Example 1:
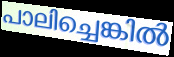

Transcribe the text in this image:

പാലിച്ചെങ്കിൽ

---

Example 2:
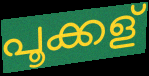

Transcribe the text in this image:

പൂക്കള്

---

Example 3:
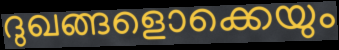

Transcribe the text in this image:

ദുഖങ്ങളൊക്കെയും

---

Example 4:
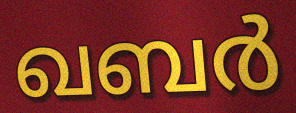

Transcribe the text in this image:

ഖബർ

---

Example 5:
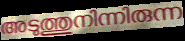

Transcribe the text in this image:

അടുത്തുനിന്നിരുന്ന